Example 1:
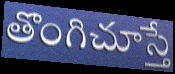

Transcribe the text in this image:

తొంగిచూస్తే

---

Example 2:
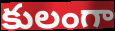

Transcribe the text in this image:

కులంగా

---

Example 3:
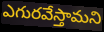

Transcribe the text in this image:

ఎగురవేస్తామని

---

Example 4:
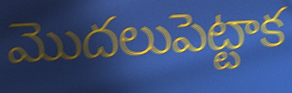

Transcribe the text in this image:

మొదలుపెట్టాక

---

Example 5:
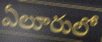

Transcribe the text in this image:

ఏలూరులో